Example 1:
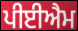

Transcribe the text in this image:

ਪੀਈਐਮ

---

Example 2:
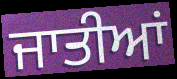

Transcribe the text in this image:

ਜਾਤੀਆਂ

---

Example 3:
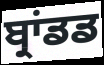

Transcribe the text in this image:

ਬ੍ਰਾਂਡਡ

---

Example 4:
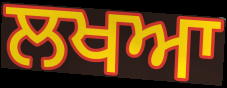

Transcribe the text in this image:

ਲਖਆ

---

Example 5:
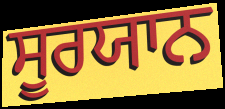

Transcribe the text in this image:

ਸੂਰਯਾਨ